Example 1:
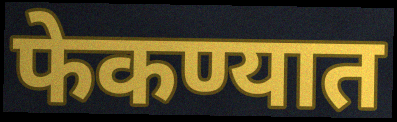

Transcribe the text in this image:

फेकण्यात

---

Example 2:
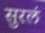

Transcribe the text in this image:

सुरलं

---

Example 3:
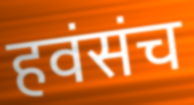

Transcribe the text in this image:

हवंसंच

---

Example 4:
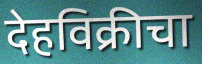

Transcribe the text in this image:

देहविक्रीचा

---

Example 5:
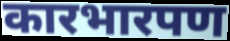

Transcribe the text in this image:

कारभारपण